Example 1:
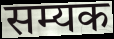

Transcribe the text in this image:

सम्यक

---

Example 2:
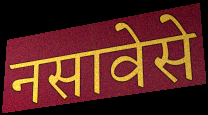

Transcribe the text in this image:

नसावेसे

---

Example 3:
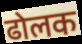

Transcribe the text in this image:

ढोलक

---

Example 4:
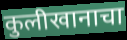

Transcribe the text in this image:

कुलीखानाचा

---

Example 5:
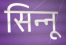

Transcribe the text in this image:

सिन्नू